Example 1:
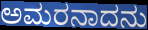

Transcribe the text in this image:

ಅಮರನಾದನು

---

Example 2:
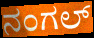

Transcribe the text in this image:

ನಂಗಲ್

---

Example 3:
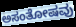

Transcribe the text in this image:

ಅಸಂತೋಷವು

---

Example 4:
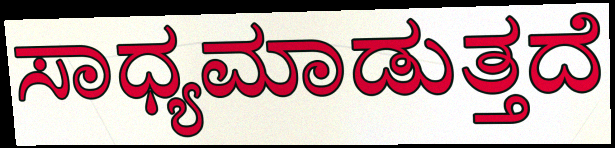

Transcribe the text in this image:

ಸಾಧ್ಯಮಾಡುತ್ತದೆ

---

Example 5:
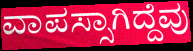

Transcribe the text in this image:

ವಾಪಸ್ಸಾಗಿದ್ದೆವು